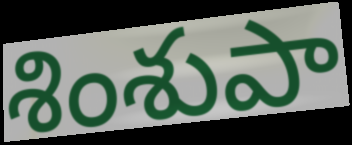
శింశుపా